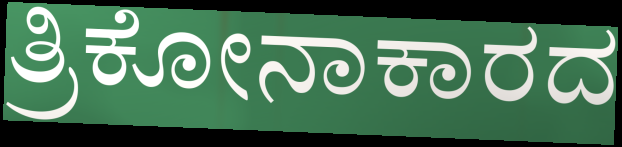
ತ್ರಿಕೋನಾಕಾರದ